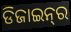
ଡିଜାଇନ୍‌ର